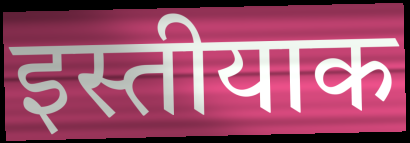
इस्तीयाक